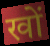
खों